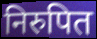
निरुपित